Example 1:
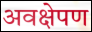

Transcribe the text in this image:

अवक्षेपण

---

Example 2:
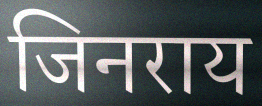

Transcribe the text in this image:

जिनराय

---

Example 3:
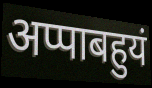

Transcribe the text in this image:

अप्पाबहुयं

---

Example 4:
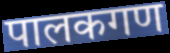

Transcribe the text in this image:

पालकगण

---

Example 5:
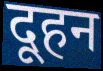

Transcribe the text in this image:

दूहन